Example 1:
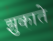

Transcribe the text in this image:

झुकाते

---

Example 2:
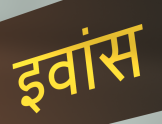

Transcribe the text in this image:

इवांस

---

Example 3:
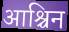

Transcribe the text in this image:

आश्चिन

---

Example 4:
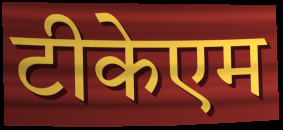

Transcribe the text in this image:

टीकेएम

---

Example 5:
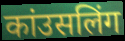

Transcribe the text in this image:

कांउसलिंग